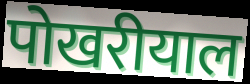
पोखरीयाल